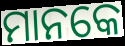
ମାନକେ